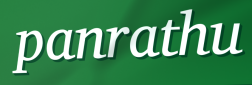
panrathu